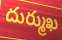
దుర్ముఖ